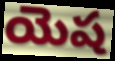
యెష